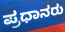
ಪ್ರಧಾನರು